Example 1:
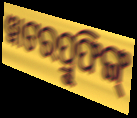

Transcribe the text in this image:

ୱାଟରପ୍ରୁଫିଙ୍ଗ୍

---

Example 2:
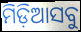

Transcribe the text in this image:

ମିଡ଼ିଆସବୁ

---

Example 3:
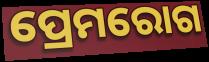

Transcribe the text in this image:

ପ୍ରେମରୋଗ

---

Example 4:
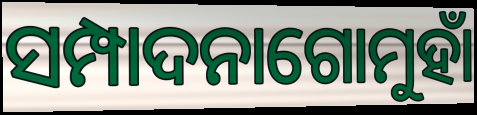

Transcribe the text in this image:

ସମ୍ପାଦନାଗୋମୁହାଁ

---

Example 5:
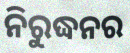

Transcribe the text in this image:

ନିରୁଦ୍ଧନର